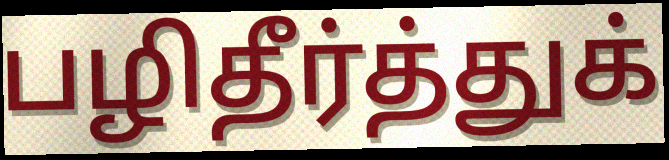
பழிதீர்த்துக்